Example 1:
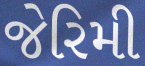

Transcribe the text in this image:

જેરિમી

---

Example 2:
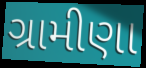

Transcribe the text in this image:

ગ્રામીણા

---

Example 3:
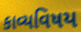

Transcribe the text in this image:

કાવ્યવિષય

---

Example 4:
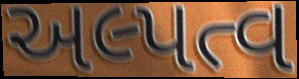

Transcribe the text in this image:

અલ્પત્વ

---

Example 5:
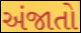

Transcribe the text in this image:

અંજાતો